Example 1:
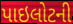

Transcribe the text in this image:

પાઇલોટની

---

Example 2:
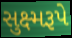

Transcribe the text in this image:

સુક્ષ્મરૂપે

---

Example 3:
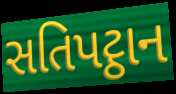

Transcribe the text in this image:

સતિપટ્ઠાન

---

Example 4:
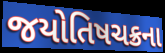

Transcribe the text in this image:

જયોતિષચક્રના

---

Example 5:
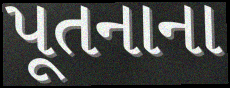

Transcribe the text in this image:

પૂતનાના